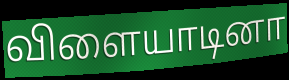
விளையாடினா